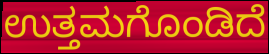
ಉತ್ತಮಗೊಂಡಿದೆ